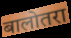
बालोतरा